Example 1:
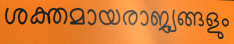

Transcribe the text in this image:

ശക്തമായരാജ്യങ്ങളും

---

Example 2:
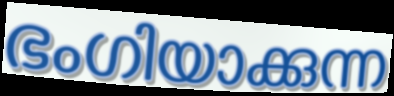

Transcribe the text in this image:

ഭംഗിയാക്കുന്ന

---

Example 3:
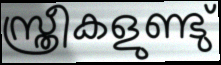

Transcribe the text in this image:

സ്ത്രീകളുണ്ടു്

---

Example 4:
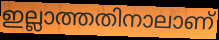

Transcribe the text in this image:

ഇല്ലാത്തതിനാലാണ്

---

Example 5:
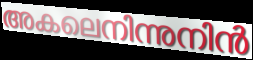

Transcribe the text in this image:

അകലെനിന്നുനിൻ